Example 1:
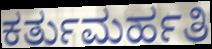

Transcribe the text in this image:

ಕರ್ತುಮರ್ಹತಿ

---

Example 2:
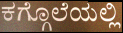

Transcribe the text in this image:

ಕಗ್ಗೊಲೆಯಲ್ಲಿ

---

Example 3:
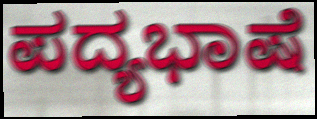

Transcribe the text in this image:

ಪದ್ಯಭಾಷೆ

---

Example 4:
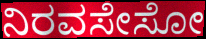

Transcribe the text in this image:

ನಿರವಸೇಸೋ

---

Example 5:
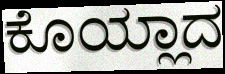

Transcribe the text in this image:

ಕೊಯ್ಲಾದ